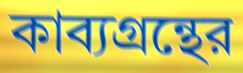
কাব্যগ্রন্থের